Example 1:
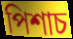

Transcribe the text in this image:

পিশাচ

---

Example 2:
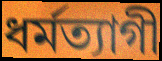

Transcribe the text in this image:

ধর্মত্যাগী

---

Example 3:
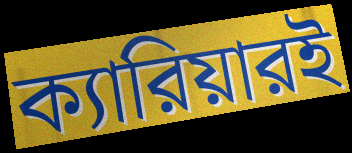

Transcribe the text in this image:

ক্যারিয়ারই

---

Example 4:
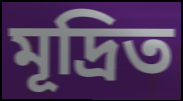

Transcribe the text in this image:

মূদ্রিত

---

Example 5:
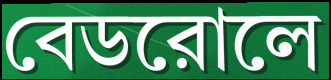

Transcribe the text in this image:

বেডরোলে